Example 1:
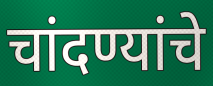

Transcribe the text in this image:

चांदण्यांचे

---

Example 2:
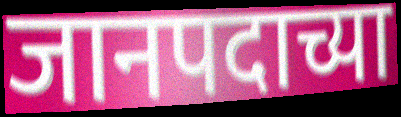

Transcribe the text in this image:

जानपदाच्या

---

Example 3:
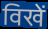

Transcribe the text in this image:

विखें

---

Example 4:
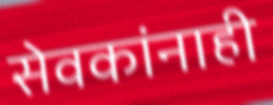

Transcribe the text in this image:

सेवकांनाही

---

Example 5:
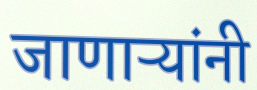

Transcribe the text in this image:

जाणाऱ्यांनी